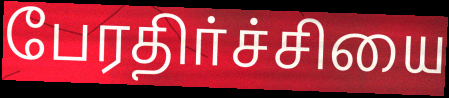
பேரதிர்ச்சியை